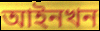
আইনখন